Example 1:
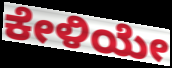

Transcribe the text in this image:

ಕೇಳಿಯೇ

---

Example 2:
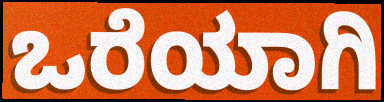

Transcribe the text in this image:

ಒರೆಯಾಗಿ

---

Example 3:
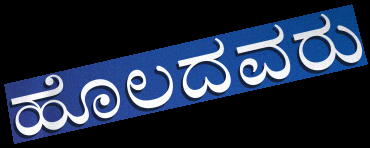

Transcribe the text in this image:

ಹೊಲದವರು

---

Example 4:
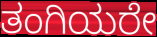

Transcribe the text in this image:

ತಂಗಿಯರೇ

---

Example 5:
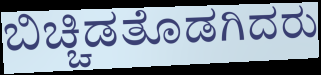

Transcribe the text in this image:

ಬಿಚ್ಚಿಡತೊಡಗಿದರು